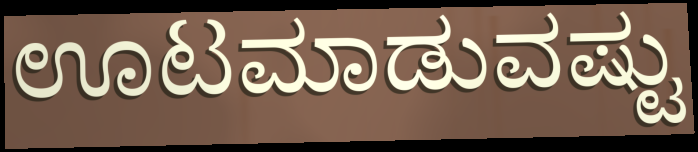
ಊಟಮಾಡುವಷ್ಟು